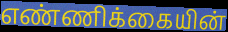
எண்ணிக்கையின்